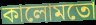
কালোমতো